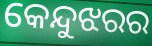
କେନ୍ଦୁଝରର